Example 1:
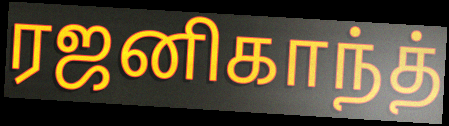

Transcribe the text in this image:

ரஜனிகாந்த்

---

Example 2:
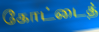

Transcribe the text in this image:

கோட்டைத்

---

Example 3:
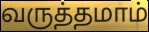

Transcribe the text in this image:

வருத்தமாம்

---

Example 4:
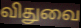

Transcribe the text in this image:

விதுவை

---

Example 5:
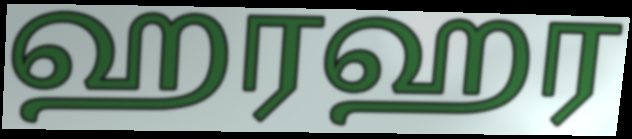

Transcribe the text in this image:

ஹரஹர